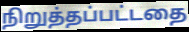
நிறுத்தப்பட்டதை